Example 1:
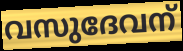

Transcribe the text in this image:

വസുദേവന്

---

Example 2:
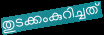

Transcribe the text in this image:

തുടക്കംകുറിച്ചത്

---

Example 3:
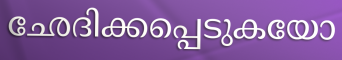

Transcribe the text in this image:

ഛേദിക്കപ്പെടുകയോ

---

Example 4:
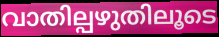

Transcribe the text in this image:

വാതില്പഴുതിലൂടെ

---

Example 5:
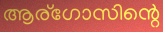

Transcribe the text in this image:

ആര്ഗോസിന്റെ